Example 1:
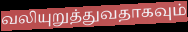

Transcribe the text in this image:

வலியுறுத்துவதாகவும்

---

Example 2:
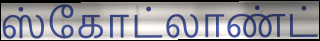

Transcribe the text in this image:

ஸ்கோட்லாண்ட்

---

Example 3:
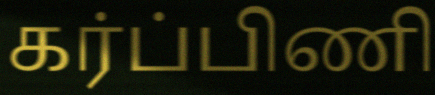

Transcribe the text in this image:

கர்ப்பிணி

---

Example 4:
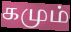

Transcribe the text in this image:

கமும்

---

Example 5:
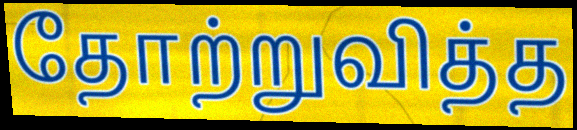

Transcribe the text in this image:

தோற்றுவித்த